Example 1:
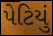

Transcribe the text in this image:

પેટિયું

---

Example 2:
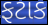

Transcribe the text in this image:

ફટાક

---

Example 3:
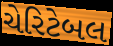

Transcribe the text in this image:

ચેરિટેબલ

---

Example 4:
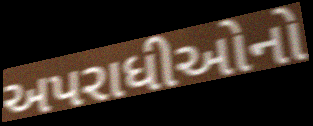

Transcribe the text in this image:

અપરાધીઓનો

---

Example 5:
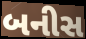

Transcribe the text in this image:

બનીસ